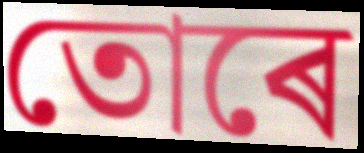
তোৰে